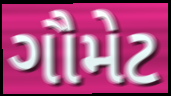
ગૌમેટ